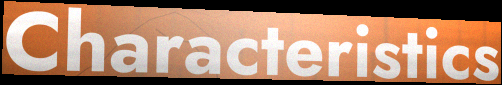
Characteristics